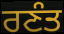
ਰਣੰਤ